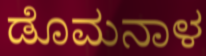
ಡೊಮನಾಳ